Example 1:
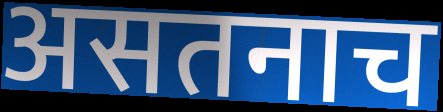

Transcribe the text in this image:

असतनाच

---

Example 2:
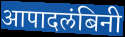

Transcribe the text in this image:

आपादलंबिनी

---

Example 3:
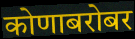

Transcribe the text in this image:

कोणाबरोबर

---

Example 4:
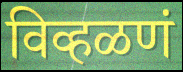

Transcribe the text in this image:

विव्हळणं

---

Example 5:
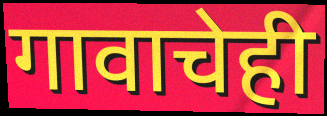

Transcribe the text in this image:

गावाचेही